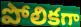
పోలికగా